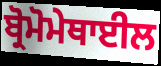
ਬ੍ਰੋਮੋਮੇਥਾਈਲ